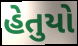
હેતુયો